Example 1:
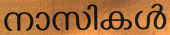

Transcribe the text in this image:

നാസികൾ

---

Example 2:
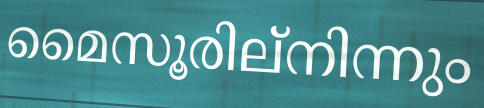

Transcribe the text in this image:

മൈസൂരില്നിന്നും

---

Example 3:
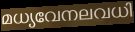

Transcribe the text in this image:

മധ്യവേനലവധി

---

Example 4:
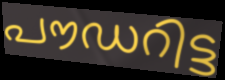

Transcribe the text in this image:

പൗഡറിട്ട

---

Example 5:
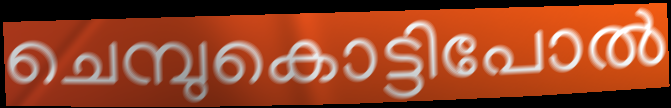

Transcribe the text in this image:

ചെമ്പുകൊട്ടിപോൽ